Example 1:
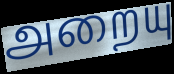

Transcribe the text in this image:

அறையு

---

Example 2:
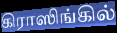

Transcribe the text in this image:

கிராஸிங்கில்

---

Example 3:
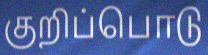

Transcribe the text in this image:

குறிப்பொடு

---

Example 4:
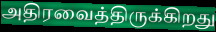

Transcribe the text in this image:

அதிரவைத்திருக்கிறது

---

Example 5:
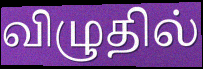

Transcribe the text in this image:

விழுதில்